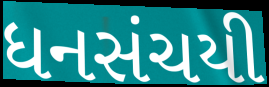
ધનસંચયી